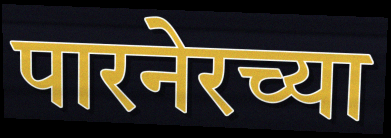
पारनेरच्या